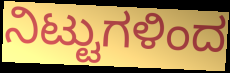
ನಿಟ್ಟುಗಳಿಂದ